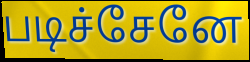
படிச்சேனே